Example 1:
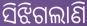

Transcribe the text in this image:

ସିଝିଗଲାଣି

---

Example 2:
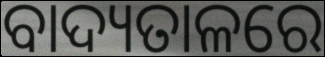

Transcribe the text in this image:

ବାଦ୍ୟତାଳରେ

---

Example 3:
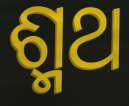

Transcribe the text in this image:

ଶ୍ମଥ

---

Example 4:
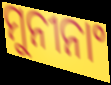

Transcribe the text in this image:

ମୁନୀନାଂ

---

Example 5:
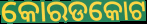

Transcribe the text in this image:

କୋରଡକୋଟ